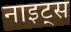
नाइट्‌स